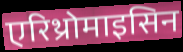
एरिथ्रोमाइसिन